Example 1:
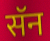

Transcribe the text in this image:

सॅन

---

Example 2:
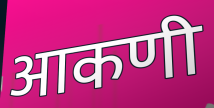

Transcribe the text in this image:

आकणी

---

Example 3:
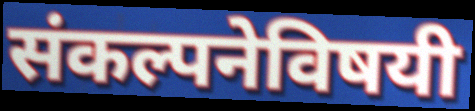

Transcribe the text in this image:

संकल्पनेविषयी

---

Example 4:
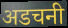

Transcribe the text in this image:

अडचनी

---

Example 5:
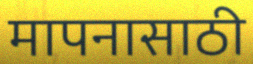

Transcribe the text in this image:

मापनासाठी